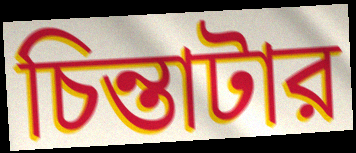
চিন্তাটার